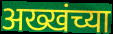
अख्खंच्या